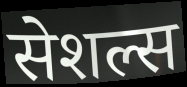
सेशल्स